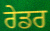
ਰੇਡਰ